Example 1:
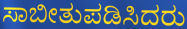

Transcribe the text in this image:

ಸಾಬೀತುಪಡಿಸಿದರು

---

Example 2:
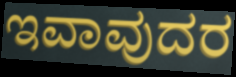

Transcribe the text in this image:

ಇವಾವುದರ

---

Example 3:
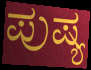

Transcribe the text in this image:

ಪುಷ್ಯ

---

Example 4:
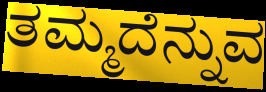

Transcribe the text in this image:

ತಮ್ಮದೆನ್ನುವ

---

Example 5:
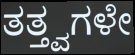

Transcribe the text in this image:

ತತ್ತ್ವಗಳೇ